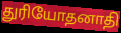
துரியோதனாதி